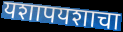
यशापयशाचा